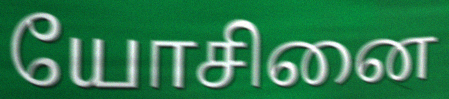
யோசினை